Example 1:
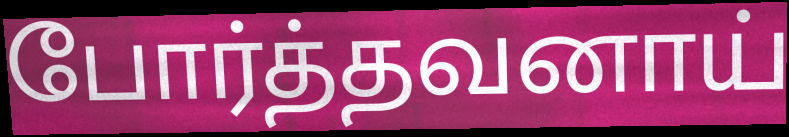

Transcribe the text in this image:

போர்த்தவனாய்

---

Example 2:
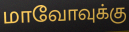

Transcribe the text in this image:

மாவோவுக்கு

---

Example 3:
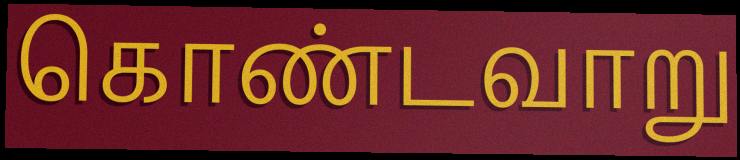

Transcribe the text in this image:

கொண்டவாறு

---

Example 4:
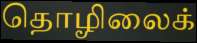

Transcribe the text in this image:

தொழிலைக்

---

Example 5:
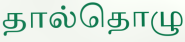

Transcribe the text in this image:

தால்தொழு